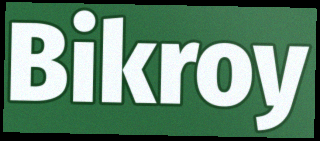
Bikroy